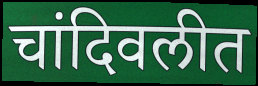
चांदिवलीत